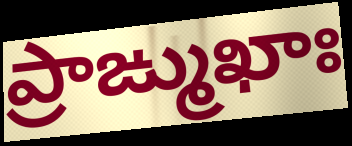
ప్రాఙ్ముఖాః